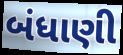
બંધાણી